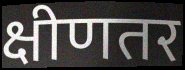
क्षीणतर